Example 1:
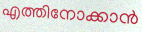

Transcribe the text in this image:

എത്തിനോക്കാൻ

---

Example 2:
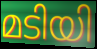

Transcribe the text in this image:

മടിയി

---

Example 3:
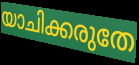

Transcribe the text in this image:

യാചിക്കരുതേ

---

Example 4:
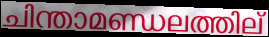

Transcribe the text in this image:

ചിന്താമണ്ഡലത്തില്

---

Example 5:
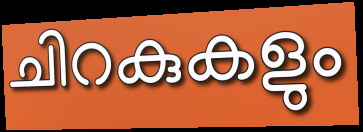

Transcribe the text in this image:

ചിറകുകളും